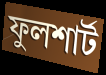
ফুলশার্ট